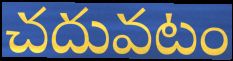
చదువటం